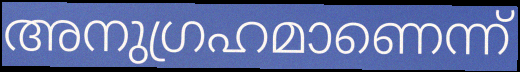
അനുഗ്രഹമാണെന്ന്